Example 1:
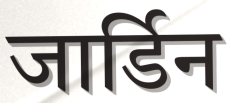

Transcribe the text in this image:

जार्डिन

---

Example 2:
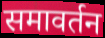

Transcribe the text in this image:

समावर्तन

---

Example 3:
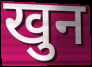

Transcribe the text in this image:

खुन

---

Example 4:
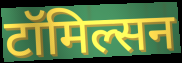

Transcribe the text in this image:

टॉमिल्सन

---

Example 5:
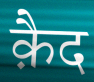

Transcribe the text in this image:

क़ैद